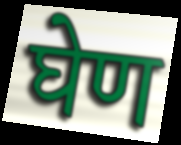
घेण